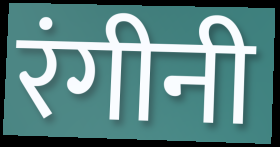
रंगीनी